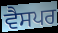
ਵੈਸਪਰ